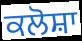
ਕਲੋਸ਼ਾ